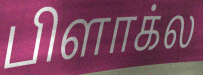
பிளாக்ல